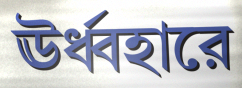
ঊর্ধ্বহারে